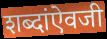
शब्दांऐवजी